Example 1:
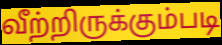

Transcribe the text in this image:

வீற்றிருக்கும்படி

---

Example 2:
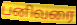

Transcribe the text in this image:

பனிவரை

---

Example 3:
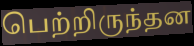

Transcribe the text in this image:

பெற்றிருந்தன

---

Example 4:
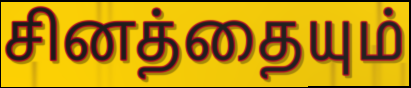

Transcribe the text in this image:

சினத்தையும்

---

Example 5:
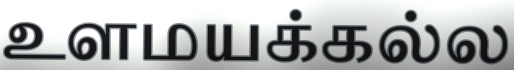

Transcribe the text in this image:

உளமயக்கல்ல